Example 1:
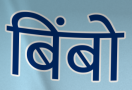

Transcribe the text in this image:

बिंबो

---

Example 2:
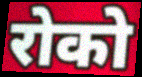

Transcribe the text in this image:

रोको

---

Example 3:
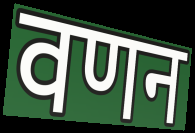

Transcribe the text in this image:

वणन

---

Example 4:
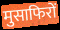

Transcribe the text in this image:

मुसाफिरों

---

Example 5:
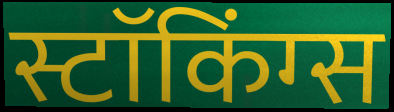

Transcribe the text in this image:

स्टॉकिंग्स